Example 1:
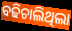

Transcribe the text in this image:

ବଢିଚାଲିଥିଲା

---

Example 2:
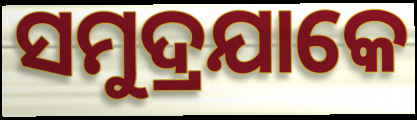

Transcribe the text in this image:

ସମୁଦ୍ରଯାକେ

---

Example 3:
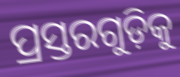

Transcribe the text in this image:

ପ୍ରସ୍ତରଗୁଡ଼ିକୁ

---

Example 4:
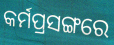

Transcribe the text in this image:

କର୍ମପ୍ରସଙ୍ଗରେ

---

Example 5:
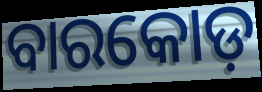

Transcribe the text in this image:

ବାରକୋଡ଼